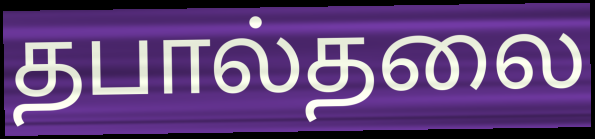
தபால்தலை